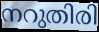
നറുതിരി